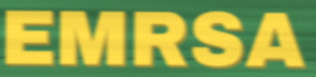
EMRSA